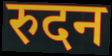
रुदन